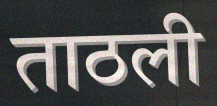
ताठली